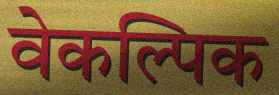
वेकल्पिक